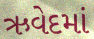
ઋવેદમાં